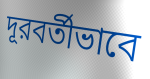
দূরবর্তীভাবে